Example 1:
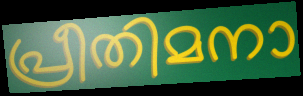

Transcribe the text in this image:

പ്രീതിമനാ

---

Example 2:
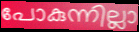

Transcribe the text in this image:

പോകുന്നില്ലാ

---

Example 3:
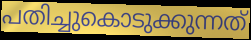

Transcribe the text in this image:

പതിച്ചുകൊടുക്കുന്നത്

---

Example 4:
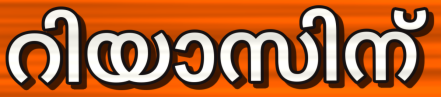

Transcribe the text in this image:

റിയാസിന്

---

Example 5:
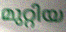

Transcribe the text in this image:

മുറ്റിയ